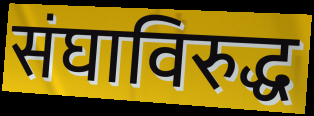
संघाविरुद्ध